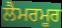
ਲੈਮਰਮੂਰ